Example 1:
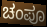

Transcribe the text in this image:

ಚಂಪೂ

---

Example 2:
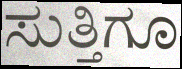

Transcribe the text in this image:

ಸುತ್ತಿಗೂ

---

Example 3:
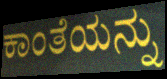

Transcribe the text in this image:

ಕಾಂತೆಯನ್ನು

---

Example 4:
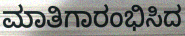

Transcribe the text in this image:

ಮಾತಿಗಾರಂಭಿಸಿದ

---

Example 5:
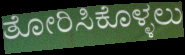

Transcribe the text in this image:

ತೋರಿಸಿಕೊಳ್ಳಲು